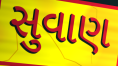
સુવાણ